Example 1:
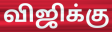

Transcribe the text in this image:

விஜிக்கு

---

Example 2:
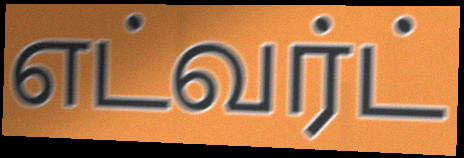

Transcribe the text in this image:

எட்வர்ட்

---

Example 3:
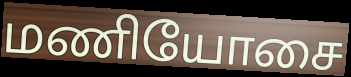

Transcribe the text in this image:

மணியோசை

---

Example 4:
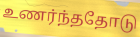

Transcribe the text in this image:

உணர்ந்ததோடு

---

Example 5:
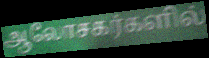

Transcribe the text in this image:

ஆலோசகர்களில்